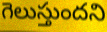
గెలుస్తుందని